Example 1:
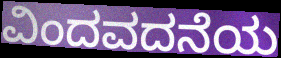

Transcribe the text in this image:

ವಿಂದವದನೆಯ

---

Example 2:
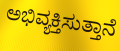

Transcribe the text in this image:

ಅಭಿವ್ಯಕ್ತಿಸುತ್ತಾನೆ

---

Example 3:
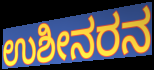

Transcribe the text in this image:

ಉಶೀನರನ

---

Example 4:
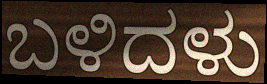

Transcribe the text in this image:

ಬಳಿದಳು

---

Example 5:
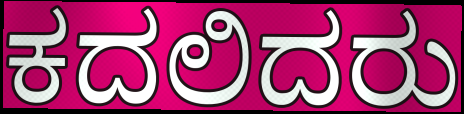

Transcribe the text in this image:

ಕದಲಿದರು